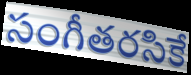
సంగీతరసికే